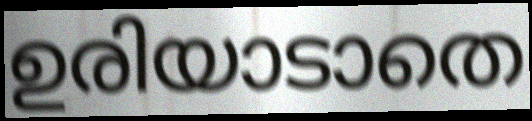
ഉരിയാടാതെ